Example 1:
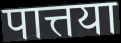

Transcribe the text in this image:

पात्तया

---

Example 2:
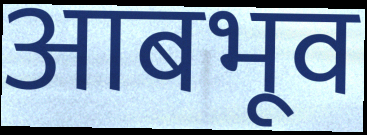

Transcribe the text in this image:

आबभूव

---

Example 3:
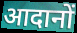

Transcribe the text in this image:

आदानों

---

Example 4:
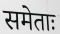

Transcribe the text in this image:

समेताः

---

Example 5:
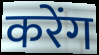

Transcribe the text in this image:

करेंग